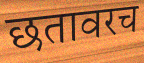
छतावरच